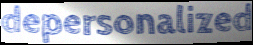
depersonalized